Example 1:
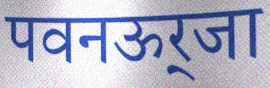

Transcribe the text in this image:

पवनऊर्जा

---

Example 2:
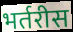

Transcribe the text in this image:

भर्तरीस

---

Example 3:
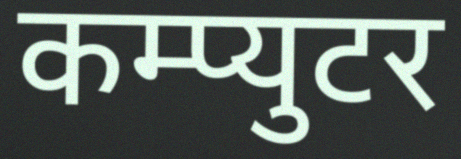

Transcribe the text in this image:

कम्प्युटर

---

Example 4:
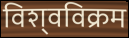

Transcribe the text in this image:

विश्वविक्रम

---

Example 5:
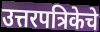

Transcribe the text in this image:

उत्तरपत्रिकेचे